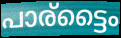
പാര്ട്ടൈം